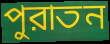
পুরাতন